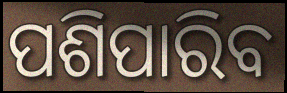
ପଶିପାରିବ